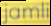
jamli